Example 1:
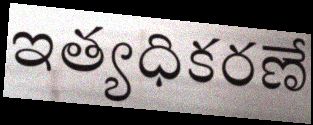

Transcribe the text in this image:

ఇత్యధికరణే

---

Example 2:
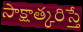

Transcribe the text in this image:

సాక్షాత్కరిస్తే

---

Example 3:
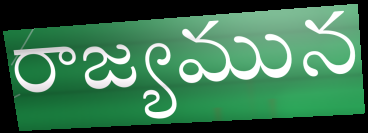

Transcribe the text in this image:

రాజ్యమున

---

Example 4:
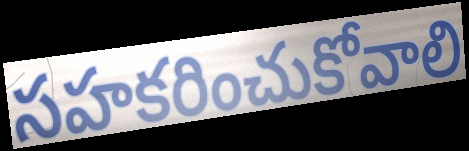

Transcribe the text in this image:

సహకరించుకోవాలి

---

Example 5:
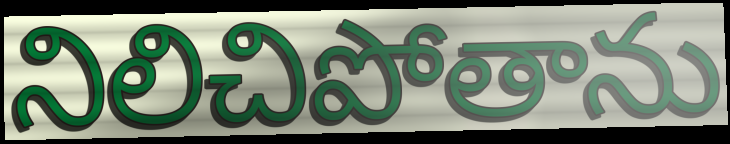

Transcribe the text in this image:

నిలిచిపోతాను